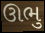
ઊભુ